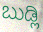
ಬುಡ್ಲಿ